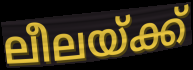
ലീലയ്ക്ക്